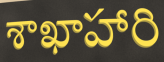
శాఖాహారి